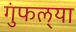
गुंफल्या